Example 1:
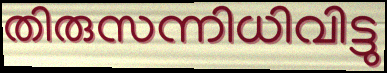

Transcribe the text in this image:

തിരുസന്നിധിവിട്ടു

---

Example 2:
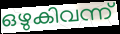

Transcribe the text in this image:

ഒഴുകിവന്ന്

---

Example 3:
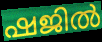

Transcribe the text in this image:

ഷജിൽ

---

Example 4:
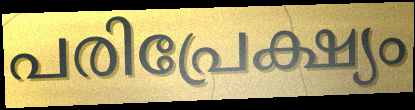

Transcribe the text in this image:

പരിപ്രേക്ഷ്യം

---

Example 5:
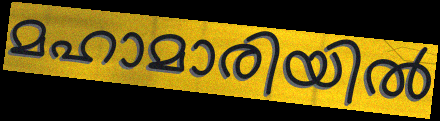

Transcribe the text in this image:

മഹാമാരിയിൽ